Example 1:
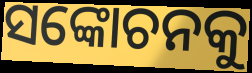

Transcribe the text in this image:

ସଙ୍କୋଚନକୁ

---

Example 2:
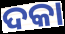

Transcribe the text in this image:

ଦକା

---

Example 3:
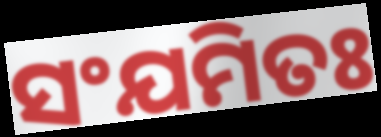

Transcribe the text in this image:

ସଂଯମିତଃ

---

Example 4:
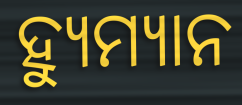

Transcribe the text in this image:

ହ୍ୟୁମ୍ୟାନ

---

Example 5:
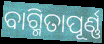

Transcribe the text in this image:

ବାଗ୍ମିତାପୂର୍ଣ୍ଣ